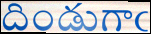
దిండుగాఁ